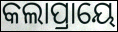
କଲାପ୍ରାୟେ